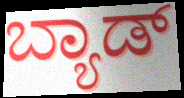
ಬ್ಯಾಡ್